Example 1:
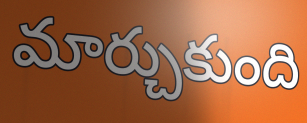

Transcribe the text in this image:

మార్చుకుంది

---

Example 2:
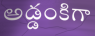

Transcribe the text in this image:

అడ్డంకిగా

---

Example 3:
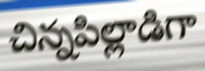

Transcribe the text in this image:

చిన్నపిల్లాడిగా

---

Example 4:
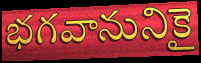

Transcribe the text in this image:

భగవానునికై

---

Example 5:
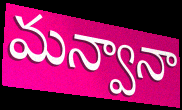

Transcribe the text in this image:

మన్వానా